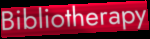
Bibliotherapy